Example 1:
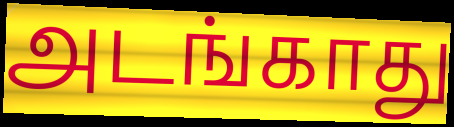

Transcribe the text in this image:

அடங்காது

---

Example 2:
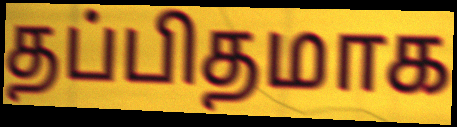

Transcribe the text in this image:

தப்பிதமாக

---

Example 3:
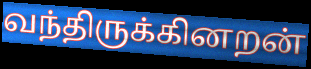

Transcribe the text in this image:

வந்திருக்கினறன்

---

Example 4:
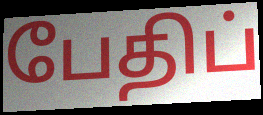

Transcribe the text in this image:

பேதிப்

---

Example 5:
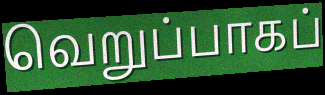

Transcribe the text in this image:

வெறுப்பாகப்